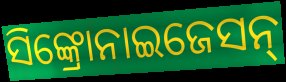
ସିଙ୍କ୍ରୋନାଇଜେସନ୍